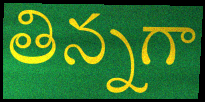
తిన్నగా